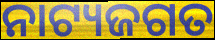
ନାଟ୍ୟଜଗତ